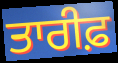
ਤਾਰੀਫ਼